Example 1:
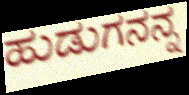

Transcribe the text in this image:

ಹುಡುಗನನ್ನ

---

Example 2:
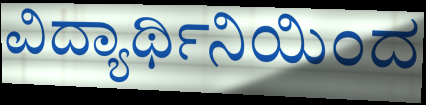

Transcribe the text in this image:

ವಿದ್ಯಾರ್ಥಿನಿಯಿಂದ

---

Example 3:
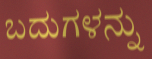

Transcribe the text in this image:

ಬದುಗಳನ್ನು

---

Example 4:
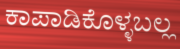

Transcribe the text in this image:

ಕಾಪಾಡಿಕೊಳ್ಳಬಲ್ಲ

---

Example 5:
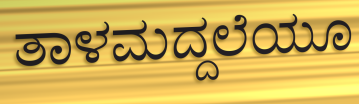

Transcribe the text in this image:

ತಾಳಮದ್ದಲೆಯೂ